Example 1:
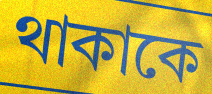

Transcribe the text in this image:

থাকাকে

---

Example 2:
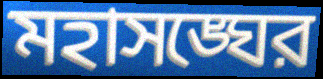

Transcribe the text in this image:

মহাসঙ্ঘের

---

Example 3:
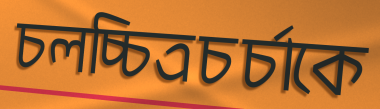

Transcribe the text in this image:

চলচ্চিত্রচর্চাকে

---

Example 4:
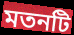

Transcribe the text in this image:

মতনটি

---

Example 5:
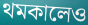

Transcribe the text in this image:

থমকালেও